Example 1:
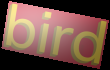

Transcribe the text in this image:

bird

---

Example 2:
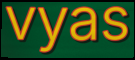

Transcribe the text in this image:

vyas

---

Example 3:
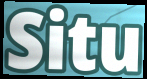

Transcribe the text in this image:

Situ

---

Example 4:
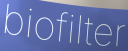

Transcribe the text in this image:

biofilter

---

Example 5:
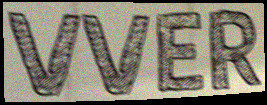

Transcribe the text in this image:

VVER